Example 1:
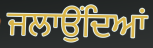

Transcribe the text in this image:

ਜਲਾਉਂਦਿਆਂ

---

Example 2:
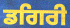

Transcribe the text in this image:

ਡਗਿਰੀ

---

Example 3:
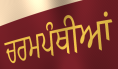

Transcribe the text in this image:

ਚਰਮਪੰਥੀਆਂ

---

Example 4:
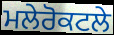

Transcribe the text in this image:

ਮਲੇਰੋਕਟਲੇ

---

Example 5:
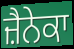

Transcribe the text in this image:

ਜ਼ੈਨੇਕਾ